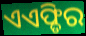
ଏଏଫ୍ଡିର